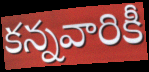
కన్నవారికీ